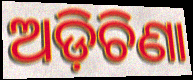
ଅଡ଼ିଚିଣା